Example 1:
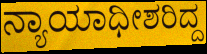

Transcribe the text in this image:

ನ್ಯಾಯಾಧೀಶರಿದ್ದ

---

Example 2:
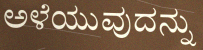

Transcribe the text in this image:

ಅಳೆಯುವುದನ್ನು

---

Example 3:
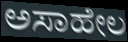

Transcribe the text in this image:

ಅಸಾಹೇಲ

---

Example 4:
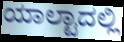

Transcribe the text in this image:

ಯಾಲ್ಟಾದಲ್ಲಿ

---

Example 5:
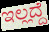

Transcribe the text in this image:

ಇಲ್ಲದ್ದೆ